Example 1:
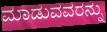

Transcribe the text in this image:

ಮಾಡುವವರನ್ನು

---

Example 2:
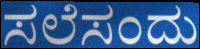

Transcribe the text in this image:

ಸಲೆಸಂದು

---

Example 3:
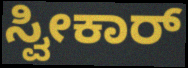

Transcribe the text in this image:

ಸ್ವೀಕಾರ್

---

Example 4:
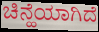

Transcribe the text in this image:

ಚಿನ್ಹೆಯಾಗಿದೆ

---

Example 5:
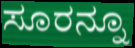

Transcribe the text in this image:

ಸೂರನ್ನೂ